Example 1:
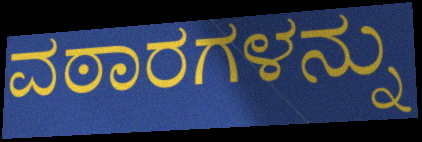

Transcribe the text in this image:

ವಠಾರಗಳನ್ನು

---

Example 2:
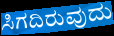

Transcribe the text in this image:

ಸಿಗದಿರುವುದು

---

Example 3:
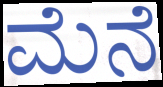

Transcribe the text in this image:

ಮೆನೆ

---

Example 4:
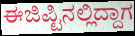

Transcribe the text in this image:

ಈಜಿಪ್ಟಿನಲ್ಲಿದ್ದಾಗ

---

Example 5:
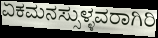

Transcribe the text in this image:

ಏಕಮನಸ್ಸುಳ್ಳವರಾಗಿರಿ